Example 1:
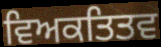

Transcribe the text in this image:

ਵਿਅਕਤਿਤਵ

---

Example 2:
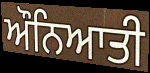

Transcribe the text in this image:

ਔਨਿਆਤੀ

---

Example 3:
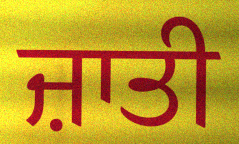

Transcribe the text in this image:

ਜ਼ਾਤੀ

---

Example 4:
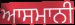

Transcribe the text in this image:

ਆਸਮਾਨੀ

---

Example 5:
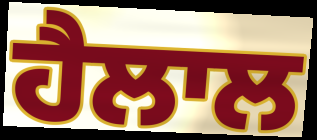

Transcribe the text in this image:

ਹੈਲਾਲ